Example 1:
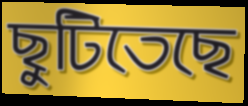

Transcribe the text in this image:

ছুটিতেছে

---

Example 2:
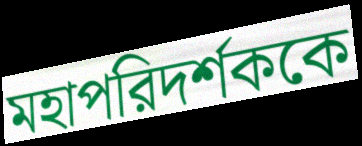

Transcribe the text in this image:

মহাপরিদর্শককে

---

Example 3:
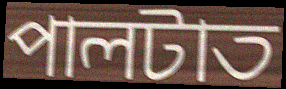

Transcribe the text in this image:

পালটাত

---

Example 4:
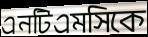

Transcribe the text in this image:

এনটিএমসিকে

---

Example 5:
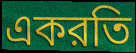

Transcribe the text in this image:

একরতি